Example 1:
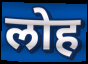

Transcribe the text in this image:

लोह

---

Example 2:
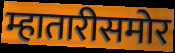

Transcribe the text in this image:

म्हातारीसमोर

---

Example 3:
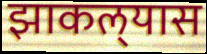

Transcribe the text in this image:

झाकल्यास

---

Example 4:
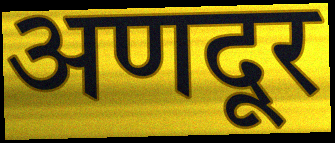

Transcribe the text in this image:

अणदूर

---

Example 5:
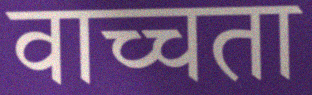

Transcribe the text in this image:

वाच्चता